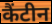
कैंटीन